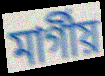
মার্গীয়